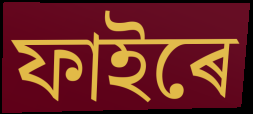
ফাইৰে